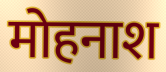
मोहनाश